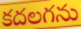
కదలగను